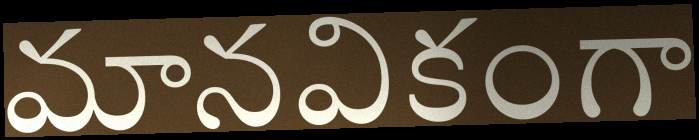
మానవికంగా